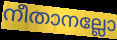
നീതാനല്ലോ